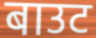
बाउट